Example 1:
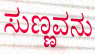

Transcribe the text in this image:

ಸುಣ್ಣವನು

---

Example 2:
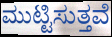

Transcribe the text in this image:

ಮುಟ್ಟಿಸುತ್ತವೆ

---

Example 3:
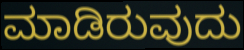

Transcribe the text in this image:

ಮಾಡಿರುವುದು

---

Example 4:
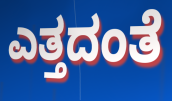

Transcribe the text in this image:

ಎತ್ತದಂತೆ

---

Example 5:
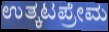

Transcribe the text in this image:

ಉತ್ಕಟಪ್ರೇಮ